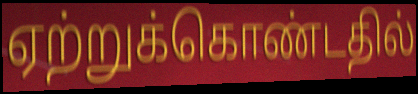
ஏற்றுக்கொண்டதில்